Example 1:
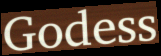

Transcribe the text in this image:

Godess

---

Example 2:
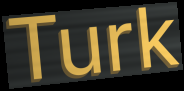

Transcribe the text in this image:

Turk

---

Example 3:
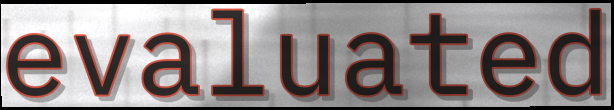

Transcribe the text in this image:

evaluated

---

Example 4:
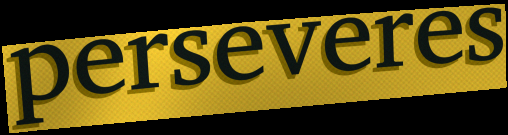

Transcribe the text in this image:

perseveres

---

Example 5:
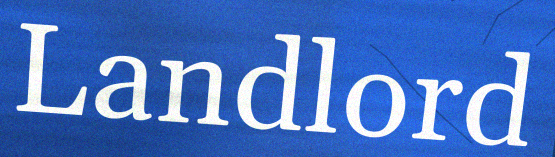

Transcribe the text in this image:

Landlord